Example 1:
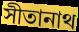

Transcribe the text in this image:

সীতানাথ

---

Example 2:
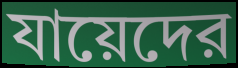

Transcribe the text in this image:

যায়েদের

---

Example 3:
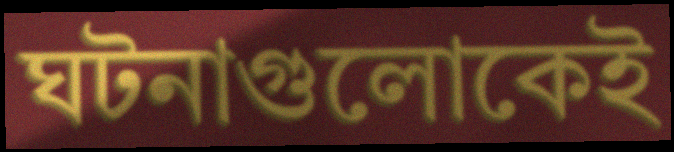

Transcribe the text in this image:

ঘটনাগুলোকেই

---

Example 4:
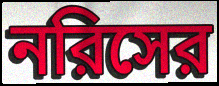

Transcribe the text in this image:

নরিসের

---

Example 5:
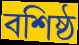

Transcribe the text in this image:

বশিষ্ঠ